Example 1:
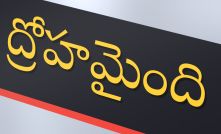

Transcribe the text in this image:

ద్రోహమైంది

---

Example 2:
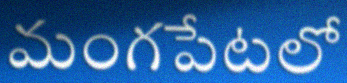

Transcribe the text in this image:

మంగపేటలో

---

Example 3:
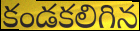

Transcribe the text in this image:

కండకలిగిన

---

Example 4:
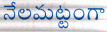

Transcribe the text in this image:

నేలమట్టంగా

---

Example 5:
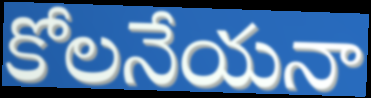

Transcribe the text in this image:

కోలనేయనా